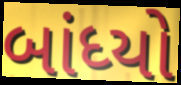
બાંધ્યો